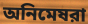
অনিমেষরা